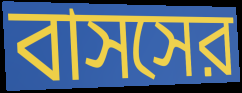
বাসসের